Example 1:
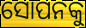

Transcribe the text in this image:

ସୋପନକୁ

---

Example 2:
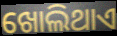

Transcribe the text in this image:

ଖୋଲିଥାଏ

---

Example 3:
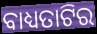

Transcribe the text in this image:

ବାଧ୍ୟତାଟିର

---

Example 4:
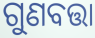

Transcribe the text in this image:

ଗୁଣବତ୍ତା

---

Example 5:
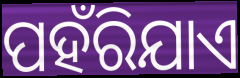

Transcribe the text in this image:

ପହଁରିଯାଏ